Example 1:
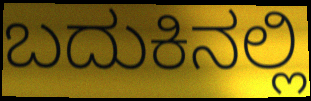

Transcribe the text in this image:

ಬದುಕಿನಲ್ಲಿ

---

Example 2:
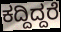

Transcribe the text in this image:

ಕದ್ದಿದ್ದರೆ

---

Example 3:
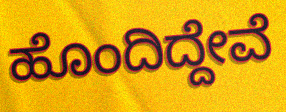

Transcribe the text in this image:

ಹೊಂದಿದ್ದೇವೆ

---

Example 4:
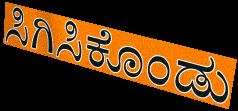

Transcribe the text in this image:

ಸಿಗಿಸಿಕೊಂಡು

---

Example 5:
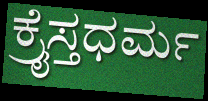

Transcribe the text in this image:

ಕ್ರೈಸ್ತಧರ್ಮ